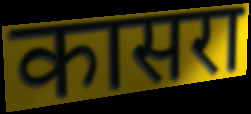
कासरा